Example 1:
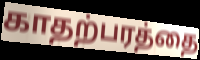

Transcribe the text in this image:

காதற்பரத்தை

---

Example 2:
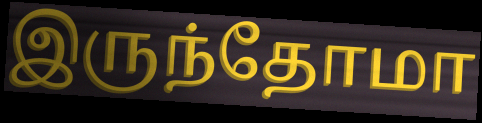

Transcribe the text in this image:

இருந்தோமா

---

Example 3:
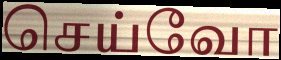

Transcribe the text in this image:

செய்வோ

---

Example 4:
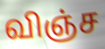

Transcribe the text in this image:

விஞ்ச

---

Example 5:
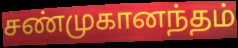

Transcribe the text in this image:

சண்முகானந்தம்